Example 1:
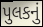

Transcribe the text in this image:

પુલકનું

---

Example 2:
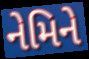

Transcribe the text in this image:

નેમિને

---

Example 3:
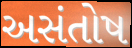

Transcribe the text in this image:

અસંતોષ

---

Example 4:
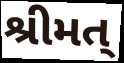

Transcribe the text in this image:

શ્રીમત્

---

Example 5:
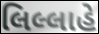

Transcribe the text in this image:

લિલ્લાહે